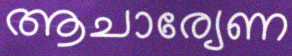
ആചാര്യേണ